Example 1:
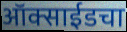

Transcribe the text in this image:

ऑक्साईडचा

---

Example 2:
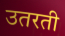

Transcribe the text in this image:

उतरती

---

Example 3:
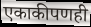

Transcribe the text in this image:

एकाकीपणही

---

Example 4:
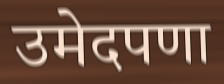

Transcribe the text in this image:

उमेदपणा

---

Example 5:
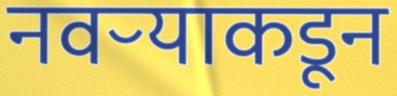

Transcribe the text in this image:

नवऱ्याकडून